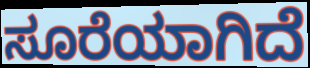
ಸೂರೆಯಾಗಿದೆ